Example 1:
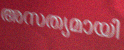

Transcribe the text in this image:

അസത്യമായി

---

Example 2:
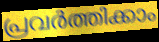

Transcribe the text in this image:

പ്രവർത്തിക്കാം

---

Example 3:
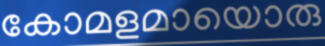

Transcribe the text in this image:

കോമളമായൊരു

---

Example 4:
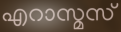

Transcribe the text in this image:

എറാസ്മസ്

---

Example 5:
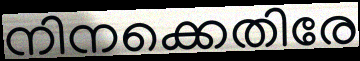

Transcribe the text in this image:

നിനക്കെതിരേ